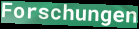
Forschungen